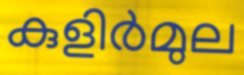
കുളിർമുല